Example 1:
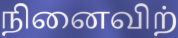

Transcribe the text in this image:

நினைவிற்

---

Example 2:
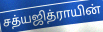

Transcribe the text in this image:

சத்யஜித்ராயின்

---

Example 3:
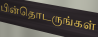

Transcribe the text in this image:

பின்தொடருங்கள்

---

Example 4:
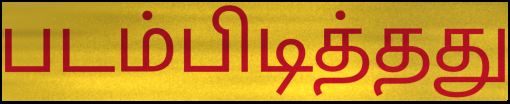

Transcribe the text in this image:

படம்பிடித்தது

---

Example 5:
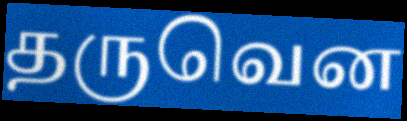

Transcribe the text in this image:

தருவென